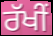
ਰੱਖੀਂ